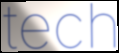
tech